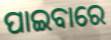
ପାଇବାରେ